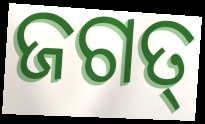
ଜଗତ୍